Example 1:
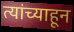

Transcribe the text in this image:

त्यांच्याहून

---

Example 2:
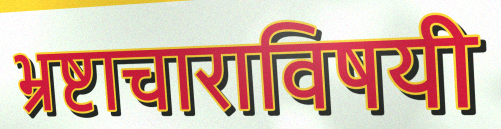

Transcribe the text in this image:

भ्रष्टाचाराविषयी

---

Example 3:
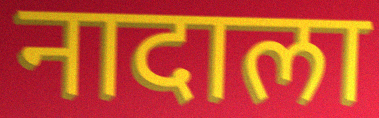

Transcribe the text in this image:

नादाला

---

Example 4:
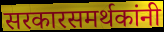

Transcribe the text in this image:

सरकारसमर्थकांनी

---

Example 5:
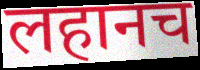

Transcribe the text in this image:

लहानच